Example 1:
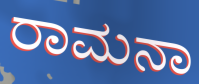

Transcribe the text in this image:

ರಾಮನಾ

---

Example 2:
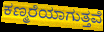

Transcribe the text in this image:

ಕಣ್ಮರೆಯಾಗುತ್ತವೆ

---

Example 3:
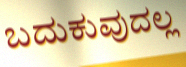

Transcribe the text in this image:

ಬದುಕುವುದಲ್ಲ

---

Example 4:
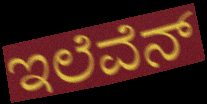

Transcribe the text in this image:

ಇಲೆವೆನ್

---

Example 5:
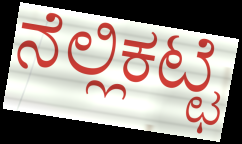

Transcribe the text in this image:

ನೆಲ್ಲಿಕಟ್ಟೆ